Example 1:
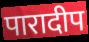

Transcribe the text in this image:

पारादीप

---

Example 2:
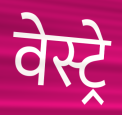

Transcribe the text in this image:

वेस्ट्रे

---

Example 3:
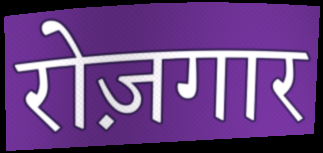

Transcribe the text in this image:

रोज़गार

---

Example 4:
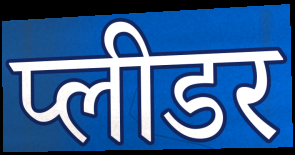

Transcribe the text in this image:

प्लीडर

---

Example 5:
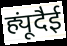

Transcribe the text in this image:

ह्यूंदैई